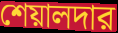
শেয়ালদার